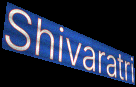
Shivaratri